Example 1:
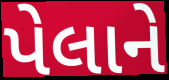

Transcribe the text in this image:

પેલાને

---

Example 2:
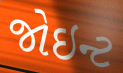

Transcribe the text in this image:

જોઇન્ટ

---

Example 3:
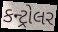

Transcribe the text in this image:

કન્ટ્રોલર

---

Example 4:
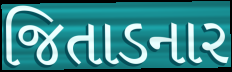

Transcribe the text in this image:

જિતાડનાર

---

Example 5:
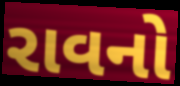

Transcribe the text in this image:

રાવનો